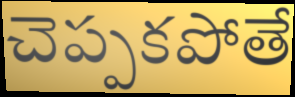
చెప్పకపోతే